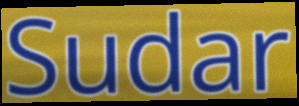
Sudar